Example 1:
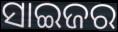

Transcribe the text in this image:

ସାଇଜର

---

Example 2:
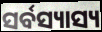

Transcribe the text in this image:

ସର୍ବସ୍ୟାସ୍ୟ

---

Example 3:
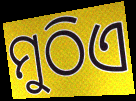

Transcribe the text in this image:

ମୁଠିଏ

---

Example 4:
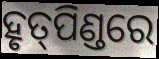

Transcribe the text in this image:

ହୃତ୍‌ପିଣ୍ଡରେ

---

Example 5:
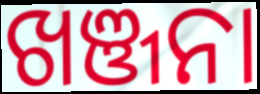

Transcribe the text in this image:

ଖଞ୍ଜନା